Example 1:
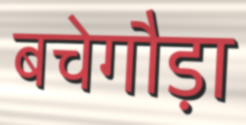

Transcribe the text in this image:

बचेगौड़ा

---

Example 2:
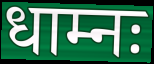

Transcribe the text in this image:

धाम्नः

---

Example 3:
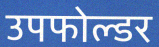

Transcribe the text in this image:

उपफोल्डर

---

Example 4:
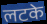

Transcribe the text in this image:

लटके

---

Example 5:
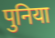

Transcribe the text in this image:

पुनिया